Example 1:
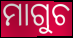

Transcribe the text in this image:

ମାଗୁଚ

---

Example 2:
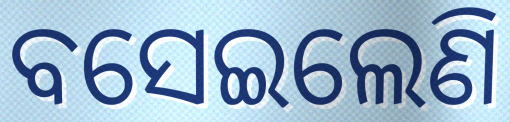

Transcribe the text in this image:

ବସେଇଲେଣି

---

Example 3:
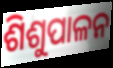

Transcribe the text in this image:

ଶିଶୁପାଳନ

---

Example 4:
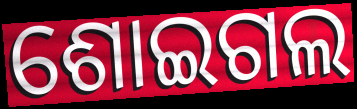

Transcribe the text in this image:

ଶୋଇଗଲ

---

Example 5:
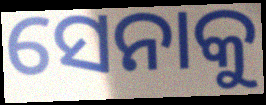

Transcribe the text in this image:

ସେନାକୁ